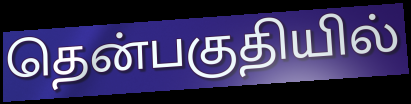
தென்பகுதியில்